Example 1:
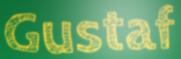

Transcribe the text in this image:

Gustaf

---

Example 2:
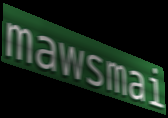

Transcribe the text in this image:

mawsmai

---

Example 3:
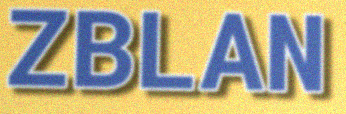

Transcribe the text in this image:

ZBLAN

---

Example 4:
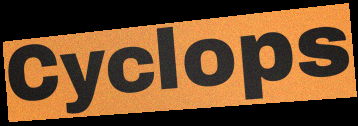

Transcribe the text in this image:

Cyclops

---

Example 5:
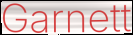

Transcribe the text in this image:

Garnett